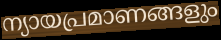
ന്യായപ്രമാണങ്ങളും